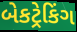
બેકટ્રેકિંગ